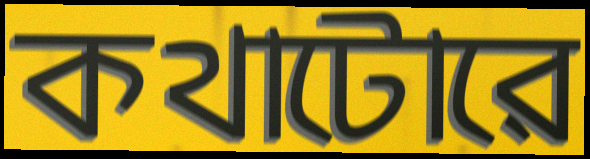
কথাটোৱে